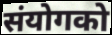
संयोगको